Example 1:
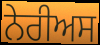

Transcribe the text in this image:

ਨੇਰੀਅਸ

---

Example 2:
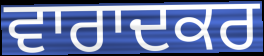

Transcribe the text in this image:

ਵਾਰਾਦਕਰ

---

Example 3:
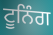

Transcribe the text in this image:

ਟੂਨਿੰਗ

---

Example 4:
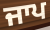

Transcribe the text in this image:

ਜਾਪ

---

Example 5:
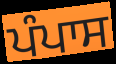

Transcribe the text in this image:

ਪੰਪਾਸ